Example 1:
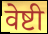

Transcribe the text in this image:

वेष्टी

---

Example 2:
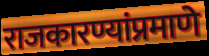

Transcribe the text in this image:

राजकारण्यांप्रमाणे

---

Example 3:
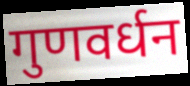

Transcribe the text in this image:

गुणवर्धन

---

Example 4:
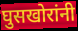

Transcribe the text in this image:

घुसखोरांनी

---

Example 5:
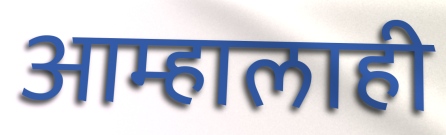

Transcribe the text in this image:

आम्हालाही